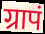
ग्रापं